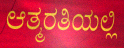
ಆತ್ಮರತಿಯಲ್ಲಿ